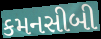
કમનસીબી